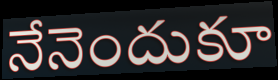
నేనెందుకూ